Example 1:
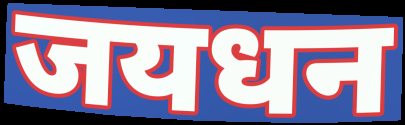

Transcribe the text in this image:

जयधन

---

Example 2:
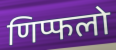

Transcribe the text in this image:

णिप्फलो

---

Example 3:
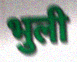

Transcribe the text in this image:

भुली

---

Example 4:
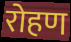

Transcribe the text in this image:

रोहण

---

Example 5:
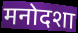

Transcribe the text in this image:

मनोदशा